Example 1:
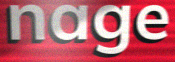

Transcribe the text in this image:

nage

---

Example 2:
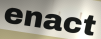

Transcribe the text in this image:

enact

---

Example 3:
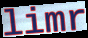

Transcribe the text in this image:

limr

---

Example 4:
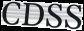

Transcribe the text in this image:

CDSS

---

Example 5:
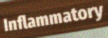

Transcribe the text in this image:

Inflammatory